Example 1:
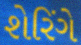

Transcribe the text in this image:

શેરિંગે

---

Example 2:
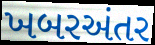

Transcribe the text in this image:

ખબરઅંતર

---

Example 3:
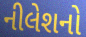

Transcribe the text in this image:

નીલેશનો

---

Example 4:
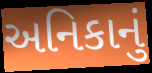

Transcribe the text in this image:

અનિકાનું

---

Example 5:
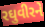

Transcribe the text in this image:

રઘુવીરને